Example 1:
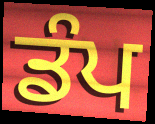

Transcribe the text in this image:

ਡੰਪ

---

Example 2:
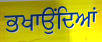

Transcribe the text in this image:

ਭਖਾਉਂਦਿਆਂ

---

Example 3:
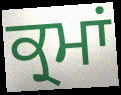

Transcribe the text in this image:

ਕ੍ਰਮਾਂ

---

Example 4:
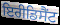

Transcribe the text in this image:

ਇਰੀਡਿਸੈਂਟ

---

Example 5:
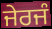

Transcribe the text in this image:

ਜੇਰਜੰ